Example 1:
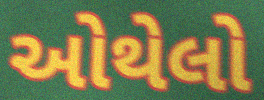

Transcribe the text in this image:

ઓથેલો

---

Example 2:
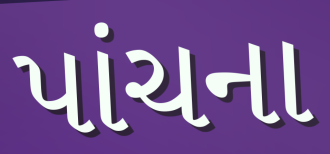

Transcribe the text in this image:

પાંચના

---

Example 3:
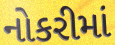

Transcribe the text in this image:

નોકરીમાં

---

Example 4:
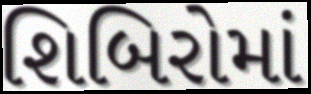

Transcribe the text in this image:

શિબિરોમાં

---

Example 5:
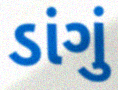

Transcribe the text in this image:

ડાંગું